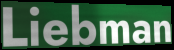
Liebman